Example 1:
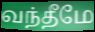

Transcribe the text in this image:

வந்தீமே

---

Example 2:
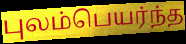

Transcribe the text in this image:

புலம்பெயர்ந்த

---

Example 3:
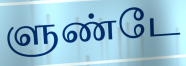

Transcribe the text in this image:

ளுண்டே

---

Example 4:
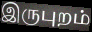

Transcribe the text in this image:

இருபுறம்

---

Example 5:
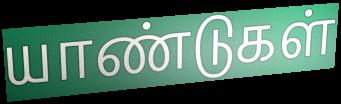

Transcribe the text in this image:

யாண்டுகள்